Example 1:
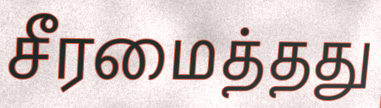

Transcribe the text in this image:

சீரமைத்தது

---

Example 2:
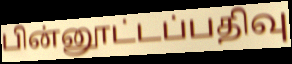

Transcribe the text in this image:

பின்னூட்டப்பதிவு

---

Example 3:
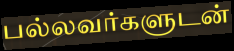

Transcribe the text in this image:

பல்லவர்களுடன்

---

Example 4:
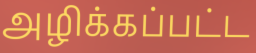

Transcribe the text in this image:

அழிக்கப்பட்ட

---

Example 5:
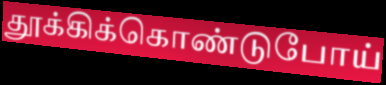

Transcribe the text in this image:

தூக்கிக்கொண்டுபோய்